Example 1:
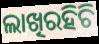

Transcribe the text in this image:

ଲାଖିରହିଚି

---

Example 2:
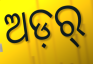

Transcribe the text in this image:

ଅଡ଼ର୍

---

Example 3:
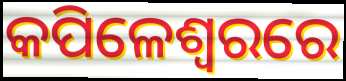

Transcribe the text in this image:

କପିଳେଶ୍ୱରରେ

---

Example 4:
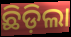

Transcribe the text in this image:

ଛିଡ଼ିଲା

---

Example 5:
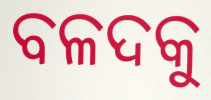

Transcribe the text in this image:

ବଳଦକୁ